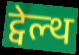
ट्वेल्थ